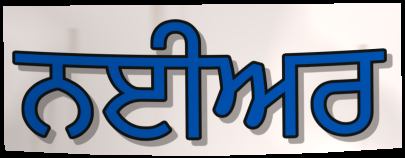
ਨਈਅਰ